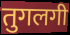
तुगलगी